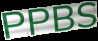
PPBS